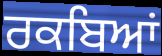
ਰਕਬਿਆਂ